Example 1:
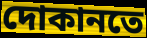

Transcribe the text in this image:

দোকানতে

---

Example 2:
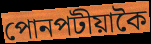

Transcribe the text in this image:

পোনপটীয়াকৈ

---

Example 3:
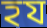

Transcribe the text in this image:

হয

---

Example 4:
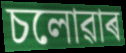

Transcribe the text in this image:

চলোৱাৰ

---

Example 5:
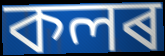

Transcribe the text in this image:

কলৰ